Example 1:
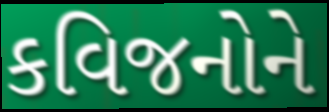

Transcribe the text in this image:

કવિજનોને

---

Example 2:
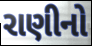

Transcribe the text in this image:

રાણીનો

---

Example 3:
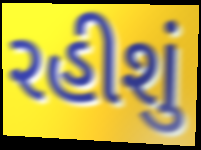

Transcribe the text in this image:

રહીશું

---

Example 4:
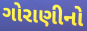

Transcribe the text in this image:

ગોરાણીનો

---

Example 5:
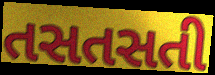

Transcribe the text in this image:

તસતસતી